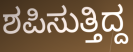
ಶಪಿಸುತ್ತಿದ್ದ